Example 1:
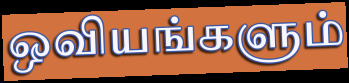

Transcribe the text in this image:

ஒவியங்களும்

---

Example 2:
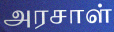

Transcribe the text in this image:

அரசாள்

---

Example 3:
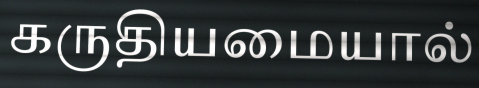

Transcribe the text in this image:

கருதியமையால்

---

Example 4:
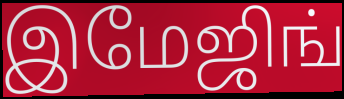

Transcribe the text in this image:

இமேஜிங்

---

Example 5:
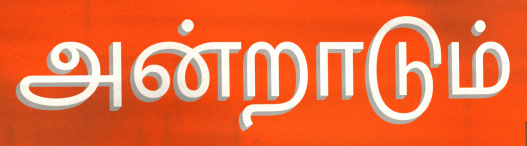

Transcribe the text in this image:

அன்றாடும்